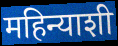
महिन्याशी